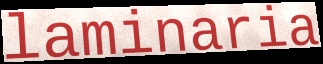
laminaria